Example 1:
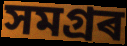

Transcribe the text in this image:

সমগ্ৰৰ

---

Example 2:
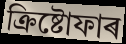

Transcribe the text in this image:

ক্ৰিষ্টোফাৰ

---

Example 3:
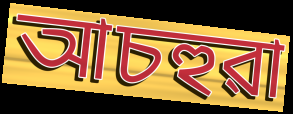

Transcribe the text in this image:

আচহুৱা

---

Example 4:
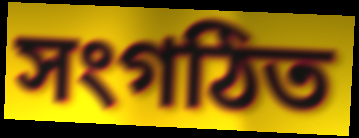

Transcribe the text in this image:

সংগঠিত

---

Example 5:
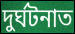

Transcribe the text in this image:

দুৰ্ঘটনাত